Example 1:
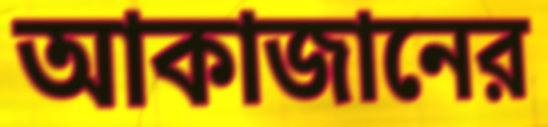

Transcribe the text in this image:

আকাজানের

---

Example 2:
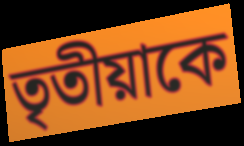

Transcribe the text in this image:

তৃতীয়াকে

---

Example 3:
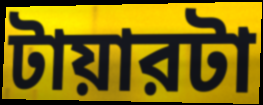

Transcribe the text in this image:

টায়ারটা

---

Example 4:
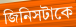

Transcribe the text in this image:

জিনিসটাকে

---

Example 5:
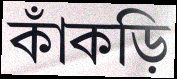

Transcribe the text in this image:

কাঁকড়ি